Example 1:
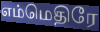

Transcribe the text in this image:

எம்மெதிரே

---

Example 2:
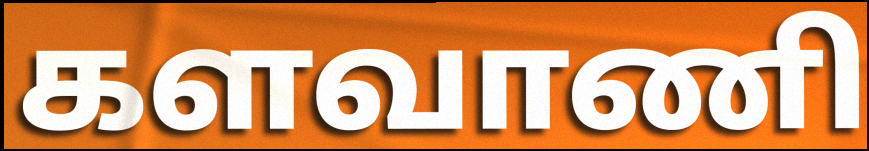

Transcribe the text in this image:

களவாணி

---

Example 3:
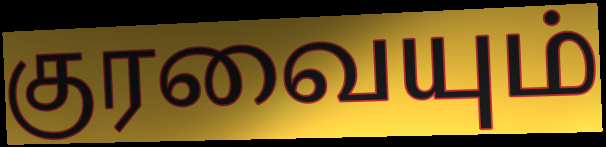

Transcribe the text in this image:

குரவையும்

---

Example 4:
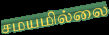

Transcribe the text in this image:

சமயமில்லை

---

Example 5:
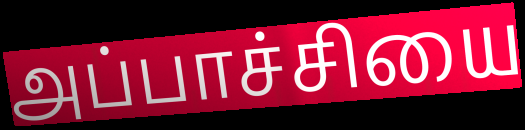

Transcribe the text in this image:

அப்பாச்சியை